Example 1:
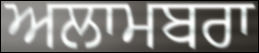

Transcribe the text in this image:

ਅਲਾਮਬਰਾ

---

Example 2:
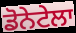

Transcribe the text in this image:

ਡੋਨੇਟੇਲਾ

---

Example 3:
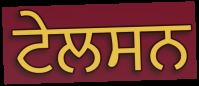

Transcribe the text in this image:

ਟੇਲਸਨ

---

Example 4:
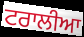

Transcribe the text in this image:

ਟਰਾਲੀਆ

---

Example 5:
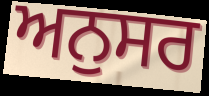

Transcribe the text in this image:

ਅਨੁਸਰ